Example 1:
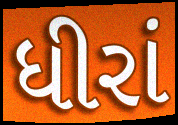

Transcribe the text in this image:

ધીરાં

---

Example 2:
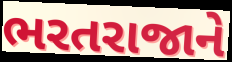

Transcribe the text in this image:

ભરતરાજાને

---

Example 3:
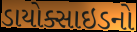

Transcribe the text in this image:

ડાયોક્સાઇડનો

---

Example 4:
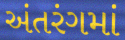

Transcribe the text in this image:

અંતરંગમાં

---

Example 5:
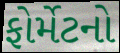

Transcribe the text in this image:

ફોર્મેટનો